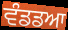
ਵੰਡਡਆ